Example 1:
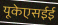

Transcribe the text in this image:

यूकेएसईई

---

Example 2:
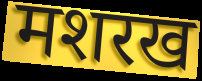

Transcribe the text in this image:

मशरख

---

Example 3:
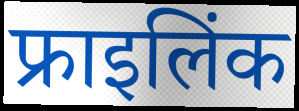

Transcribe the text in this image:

फ्राइलिंक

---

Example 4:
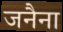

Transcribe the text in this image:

जनैना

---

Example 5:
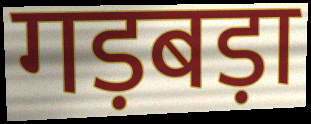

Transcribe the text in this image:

गड़बड़ा